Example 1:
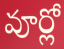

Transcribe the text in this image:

వూర్లో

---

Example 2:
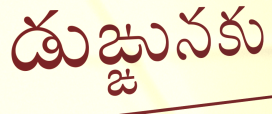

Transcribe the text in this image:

డుఙ్ఙునకు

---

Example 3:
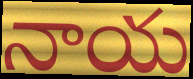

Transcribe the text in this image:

నాయ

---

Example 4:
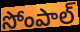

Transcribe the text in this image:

సోంపాల్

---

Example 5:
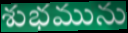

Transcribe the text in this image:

శుభమును